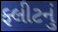
ફ્લીટનું